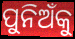
ପୁନିଅଁକୁ